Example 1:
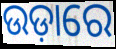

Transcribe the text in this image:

ଉଡ଼ାରେ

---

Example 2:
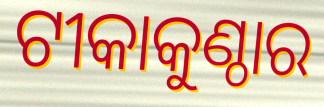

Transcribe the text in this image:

ଟୀକାକୁଣ୍ଠାର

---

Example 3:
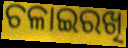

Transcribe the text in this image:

ଚଳାଇରଖି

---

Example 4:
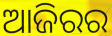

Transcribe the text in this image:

ଆଜିରର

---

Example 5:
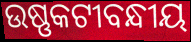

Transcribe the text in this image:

ଉଷ୍ଣକଟୀବନ୍ଧୀୟ